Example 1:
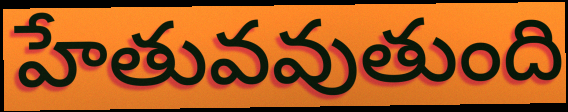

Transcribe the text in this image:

హేతువవుతుంది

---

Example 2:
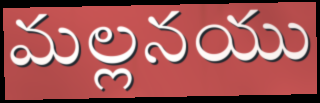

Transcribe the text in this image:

మల్లనయు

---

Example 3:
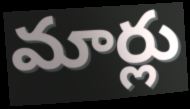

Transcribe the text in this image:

మార్లు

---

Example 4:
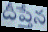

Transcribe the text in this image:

దీప్తేన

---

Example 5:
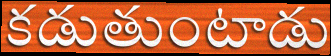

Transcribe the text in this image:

కడుతుంటాడు